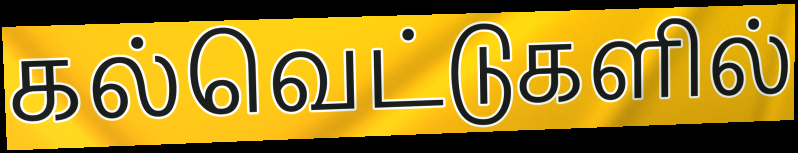
கல்வெட்டுகளில்